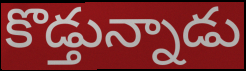
కొడ్తున్నాడు